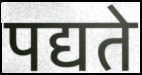
पद्यते